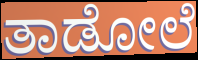
ತಾಡೋಲೆ